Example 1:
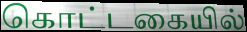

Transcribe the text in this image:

கொட்டகையில்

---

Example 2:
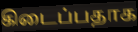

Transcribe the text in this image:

கிடைப்பதாக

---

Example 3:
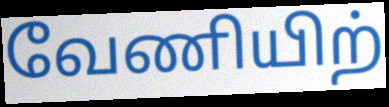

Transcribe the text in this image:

வேணியிற்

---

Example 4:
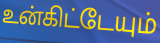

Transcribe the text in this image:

உன்கிட்டேயும்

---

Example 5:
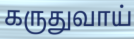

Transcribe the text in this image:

கருதுவாய்